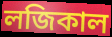
লজিকাল